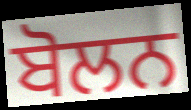
ਬੋਲਨ